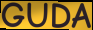
GUDA